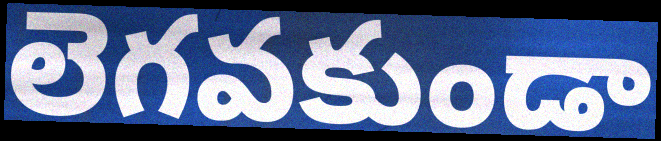
లెగవకుండా